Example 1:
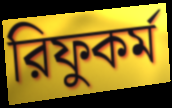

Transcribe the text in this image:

রিফুকর্ম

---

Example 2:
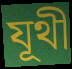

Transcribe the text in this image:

যূথী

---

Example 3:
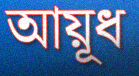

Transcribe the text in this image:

আয়ূধ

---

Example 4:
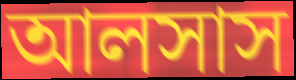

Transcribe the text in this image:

আলসাস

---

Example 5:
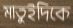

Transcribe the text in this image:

মাতুইদিকে